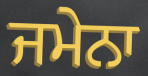
ਜਮੇਨਾ